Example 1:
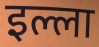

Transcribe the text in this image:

इल्ला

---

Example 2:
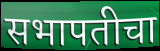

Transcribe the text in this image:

सभापतीचा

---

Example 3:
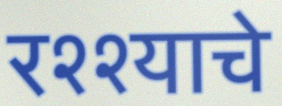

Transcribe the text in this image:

रश्श्याचे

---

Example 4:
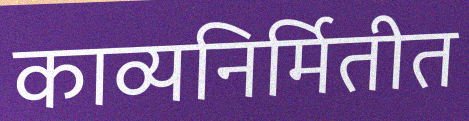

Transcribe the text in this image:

काव्यनिर्मितीत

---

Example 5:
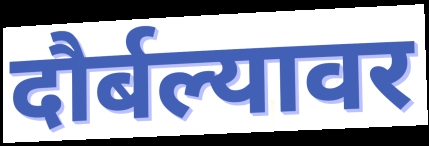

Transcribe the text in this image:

दौर्बल्यावर